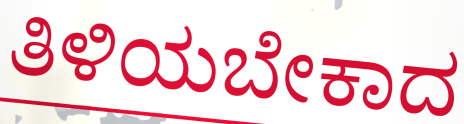
ತಿಳಿಯಬೇಕಾದ